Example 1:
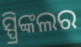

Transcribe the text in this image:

ସ୍ପ୍ରିଙ୍କଲର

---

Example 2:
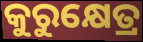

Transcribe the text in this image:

କୁରୁକ୍ଷେତ୍ର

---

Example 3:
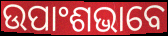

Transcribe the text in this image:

ଉପାଂଶଭାବେ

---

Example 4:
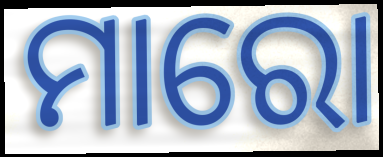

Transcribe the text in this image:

ମାରୋ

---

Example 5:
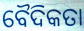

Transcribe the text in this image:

ବୈଦିକତା